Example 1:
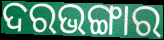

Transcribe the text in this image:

ଦରଭଙ୍ଗାର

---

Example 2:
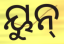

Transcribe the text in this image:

ୟୁନ୍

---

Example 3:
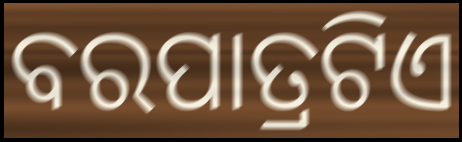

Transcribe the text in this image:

ବରପାତ୍ରଟିଏ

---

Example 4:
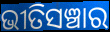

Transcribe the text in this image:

ଭୀତିସଞ୍ଚାର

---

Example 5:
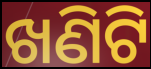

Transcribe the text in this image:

ଖଣିଟି